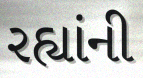
રહ્યાંની